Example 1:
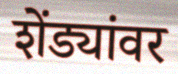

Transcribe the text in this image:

शेंड्यांवर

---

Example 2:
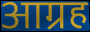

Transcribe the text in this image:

आग्रह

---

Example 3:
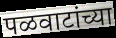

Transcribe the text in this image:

पळवाटांच्या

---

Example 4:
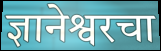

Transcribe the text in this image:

ज्ञानेश्वरचा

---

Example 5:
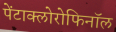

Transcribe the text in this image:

पेंटाक्लोरोफिनॉल